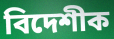
বিদেশীক